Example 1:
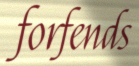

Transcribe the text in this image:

forfends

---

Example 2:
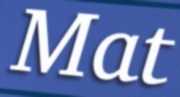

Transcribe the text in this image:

Mat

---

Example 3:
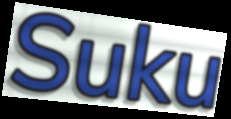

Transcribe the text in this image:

Suku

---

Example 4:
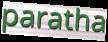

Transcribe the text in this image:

paratha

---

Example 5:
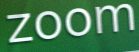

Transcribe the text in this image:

zoom